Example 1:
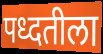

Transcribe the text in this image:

पध्दतीला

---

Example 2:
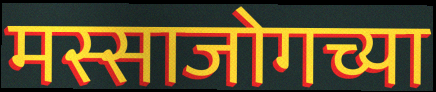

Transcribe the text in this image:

मस्साजोगच्या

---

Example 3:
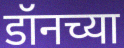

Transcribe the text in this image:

डॉनच्या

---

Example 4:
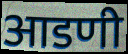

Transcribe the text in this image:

आडणी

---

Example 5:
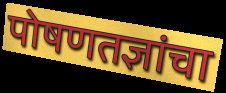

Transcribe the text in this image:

पोषणतज्ञांचा